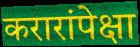
करारांपेक्षा